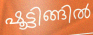
ഷൂട്ടിങ്ങിൽ